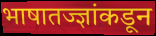
भाषातज्ज्ञांकडून